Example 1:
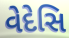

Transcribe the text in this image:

વેદેસિ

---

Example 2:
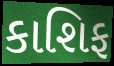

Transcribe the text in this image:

કાશિફ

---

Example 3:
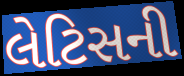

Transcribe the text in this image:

લેટિસની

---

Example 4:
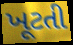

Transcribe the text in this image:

ખૂટતી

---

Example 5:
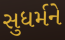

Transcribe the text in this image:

સુધર્મને